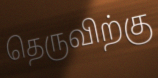
தெருவிற்கு